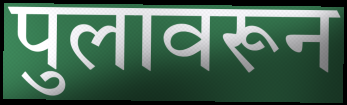
पुलावरून